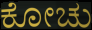
ಕೋಚು